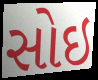
સોઇ